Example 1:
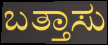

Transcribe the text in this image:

ಬತ್ತಾಸು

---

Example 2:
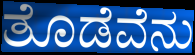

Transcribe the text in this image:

ತೊಡೆವೆನು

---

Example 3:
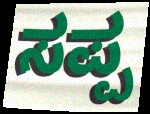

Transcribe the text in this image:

ಸಪ್ಪ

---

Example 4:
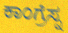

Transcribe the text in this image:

ಕಾಂಗ್ರೆಸ್ನ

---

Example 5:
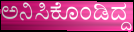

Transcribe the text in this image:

ಅನಿಸಿಕೊಂಡಿದ್ದ